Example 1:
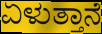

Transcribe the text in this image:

ಏಳುತ್ತಾನೆ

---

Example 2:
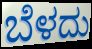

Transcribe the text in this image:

ಬೆಳದು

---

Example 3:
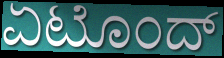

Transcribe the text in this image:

ಏಟೊಂದ್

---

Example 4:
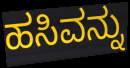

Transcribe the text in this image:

ಹಸಿವನ್ನು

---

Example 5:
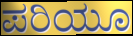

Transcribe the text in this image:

ಪರಿಯೂ